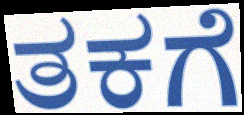
ತಕಗೆ